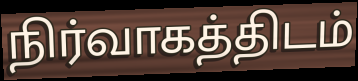
நிர்வாகத்திடம்